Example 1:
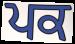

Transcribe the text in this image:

ਪਕ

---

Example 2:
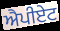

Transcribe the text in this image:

ਐਪੀਏਟ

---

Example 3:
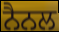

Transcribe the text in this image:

ਨੈਨਲ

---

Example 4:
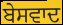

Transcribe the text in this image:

ਬੇਸਵਾਦ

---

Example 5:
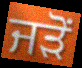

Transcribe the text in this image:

ਜੜੋਂ